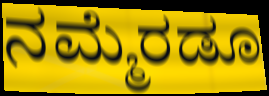
ನಮ್ಮೆರಡೂ